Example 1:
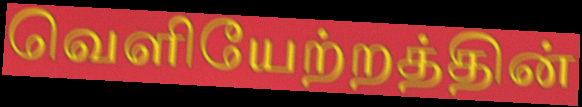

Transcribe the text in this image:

வெளியேற்றத்தின்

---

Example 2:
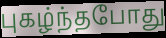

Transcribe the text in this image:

புகழ்ந்தபோது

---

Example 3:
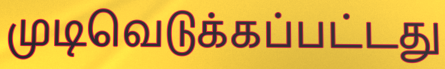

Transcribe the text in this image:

முடிவெடுக்கப்பட்டது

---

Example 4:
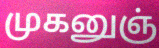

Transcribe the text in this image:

முகனுஞ்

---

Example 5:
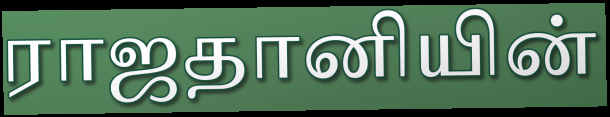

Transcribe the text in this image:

ராஜதானியின்